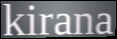
kirana